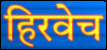
हिरवेच